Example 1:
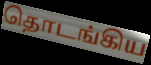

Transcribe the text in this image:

தொடங்கிய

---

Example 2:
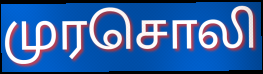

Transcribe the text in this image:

முரசொலி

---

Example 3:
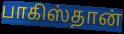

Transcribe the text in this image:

பாகிஸ்தான்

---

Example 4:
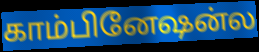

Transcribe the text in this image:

காம்பினேஷன்ல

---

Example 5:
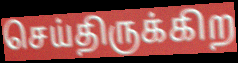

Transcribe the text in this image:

செய்திருக்கிற